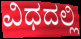
ವಿಧದಲ್ಲಿ